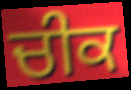
ਚੀਕ